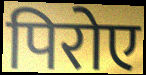
पिरोए